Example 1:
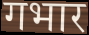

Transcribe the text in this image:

गभार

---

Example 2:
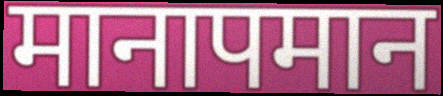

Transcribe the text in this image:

मानापमान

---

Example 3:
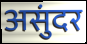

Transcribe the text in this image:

असुंदर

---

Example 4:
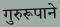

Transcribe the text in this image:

गुरुरूपाने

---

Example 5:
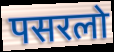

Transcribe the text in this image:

पसरलो